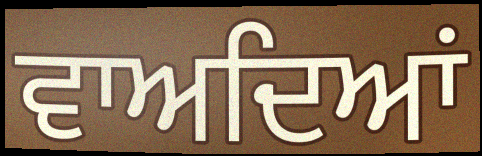
ਵਾਅਦਿਆਂ